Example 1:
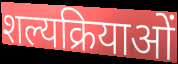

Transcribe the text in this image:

शल्यक्रियाओं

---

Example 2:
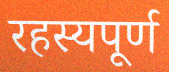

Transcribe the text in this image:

रहस्यपूर्ण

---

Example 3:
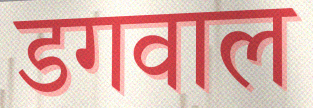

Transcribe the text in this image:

डगवाल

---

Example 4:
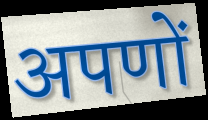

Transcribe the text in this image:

अपणों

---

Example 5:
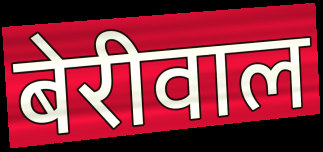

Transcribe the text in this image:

बेरीवाल